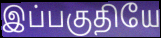
இப்பகுதியே